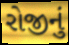
રોજીનું